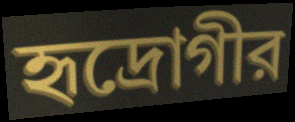
হৃদ্রোগীর